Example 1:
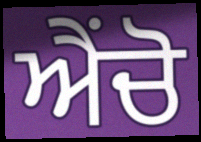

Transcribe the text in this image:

ਐਂਚੋ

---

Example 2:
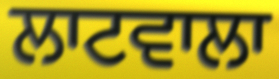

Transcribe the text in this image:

ਲਾਟਵਾਲਾ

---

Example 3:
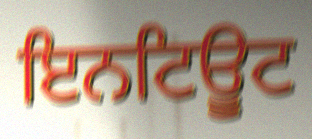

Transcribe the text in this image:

ਇਨਟਿਊਟ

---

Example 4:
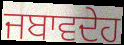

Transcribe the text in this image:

ਜਬਾਵਦੇਹ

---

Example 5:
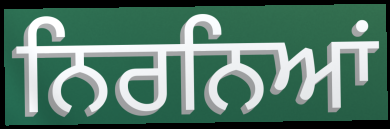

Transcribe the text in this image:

ਨਿਰਨਿਆਂ